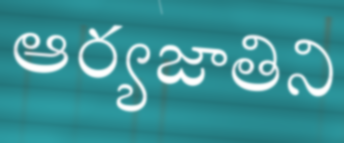
ఆర్యజాతిని